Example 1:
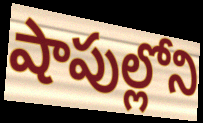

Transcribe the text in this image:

షాపుల్లోని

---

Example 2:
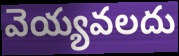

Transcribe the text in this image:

వెయ్యవలదు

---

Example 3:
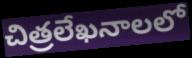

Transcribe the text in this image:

చిత్రలేఖనాలలో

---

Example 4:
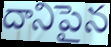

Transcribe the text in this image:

దానిపైన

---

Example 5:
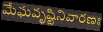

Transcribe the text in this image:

మేఘవృష్టినివారణః